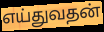
எய்துவதன்